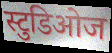
स्टुडिओज